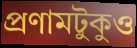
প্রণামটুকুও